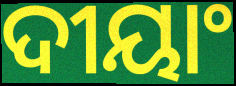
ଦୀୟାଂ